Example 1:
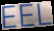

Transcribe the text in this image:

EEL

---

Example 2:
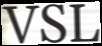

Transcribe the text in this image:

VSL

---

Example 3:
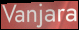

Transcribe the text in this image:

Vanjara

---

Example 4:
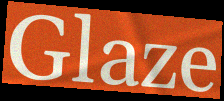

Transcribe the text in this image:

Glaze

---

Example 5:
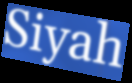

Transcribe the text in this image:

Siyah